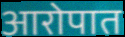
आरोपात